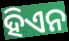
ହିଏନ